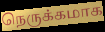
நெருக்கமாக